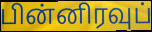
பின்னிரவுப்